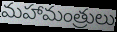
మహామంత్రులు